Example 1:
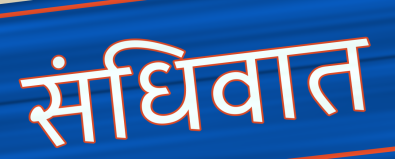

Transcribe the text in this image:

संधिवात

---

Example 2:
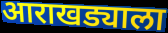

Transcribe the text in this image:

आराखड्याला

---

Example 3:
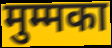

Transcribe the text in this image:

मुम्मका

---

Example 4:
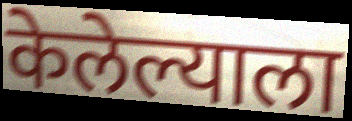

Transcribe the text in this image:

केलेल्याला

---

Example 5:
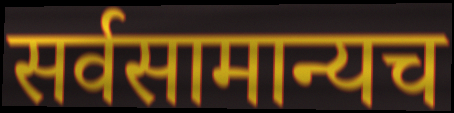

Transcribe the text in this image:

सर्वसामान्यच